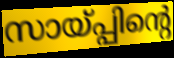
സായ്പ്പിന്റെ